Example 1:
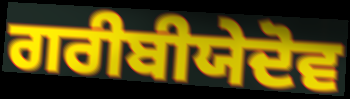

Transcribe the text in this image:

ਗਰੀਬੀਯੇਦੋਵ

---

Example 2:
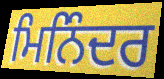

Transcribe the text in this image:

ਮਿਨਿੰਦਰ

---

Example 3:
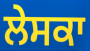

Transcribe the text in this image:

ਲੇਸਕਾ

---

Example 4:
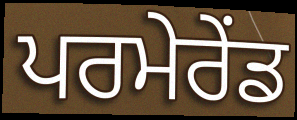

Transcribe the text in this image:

ਪਰਮੇਰੇਂਡ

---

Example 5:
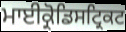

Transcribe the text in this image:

ਮਾਈਕ੍ਰੋਡਿਸਟ੍ਰਿਕਟ